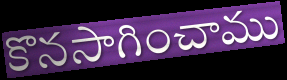
కొనసాగించాము